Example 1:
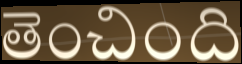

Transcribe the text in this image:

తెంచింది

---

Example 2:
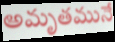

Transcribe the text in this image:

అమృతమునే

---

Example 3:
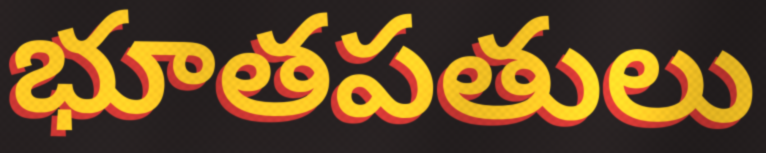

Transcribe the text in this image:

భూతపతులు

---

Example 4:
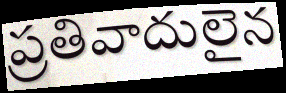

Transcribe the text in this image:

ప్రతివాదులైన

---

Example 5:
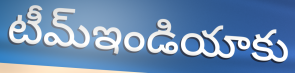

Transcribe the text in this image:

టీమ్ఇండియాకు